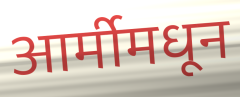
आर्मीमधून